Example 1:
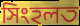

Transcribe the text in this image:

সিংহলত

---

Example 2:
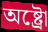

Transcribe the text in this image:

অষ্ট্ৰো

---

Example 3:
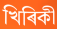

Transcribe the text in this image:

খিৰিকী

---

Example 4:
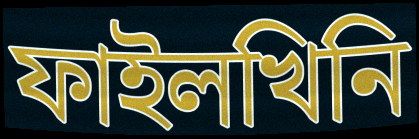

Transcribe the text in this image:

ফাইলখিনি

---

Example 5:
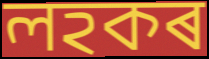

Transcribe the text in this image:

লহকৰ